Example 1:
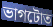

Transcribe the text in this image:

ভাগটোত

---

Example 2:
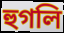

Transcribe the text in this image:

হুগলি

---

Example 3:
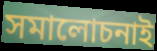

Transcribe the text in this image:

সমালোচনাই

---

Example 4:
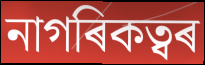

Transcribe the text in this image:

নাগৰিকত্বৰ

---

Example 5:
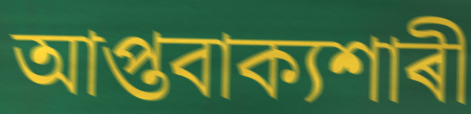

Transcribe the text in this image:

আপ্তবাক্যশাৰী